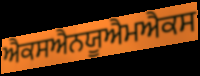
ਐਕਸਐਨਯੂਐਮਐਕਸ